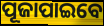
ପୂଜାପାଇବେ